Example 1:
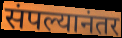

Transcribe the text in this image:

संपल्यानंतर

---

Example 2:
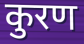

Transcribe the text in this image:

कुरण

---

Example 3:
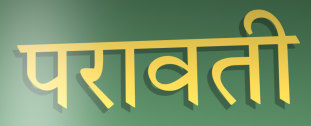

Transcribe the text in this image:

परावती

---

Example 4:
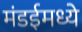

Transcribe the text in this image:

मंडईमध्ये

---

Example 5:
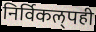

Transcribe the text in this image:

निर्विकल्पही